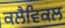
ਕਲੈਵਿਕਲ